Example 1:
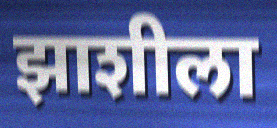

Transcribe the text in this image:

झाशीला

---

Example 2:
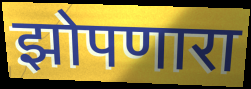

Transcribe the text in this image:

झोपणारा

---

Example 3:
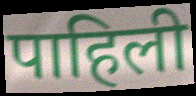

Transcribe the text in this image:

पाहिली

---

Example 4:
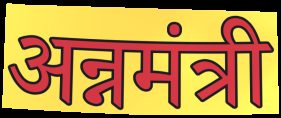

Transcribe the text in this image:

अन्नमंत्री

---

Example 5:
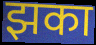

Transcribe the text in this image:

झका